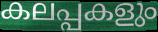
കലപ്പകളും